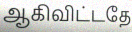
ஆகிவிட்டதே